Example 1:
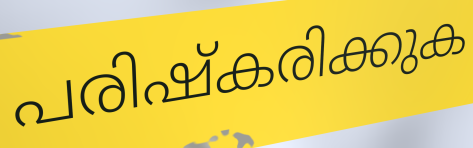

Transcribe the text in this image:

പരിഷ്കരിക്കുക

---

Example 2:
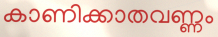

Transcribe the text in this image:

കാണിക്കാതവണ്ണം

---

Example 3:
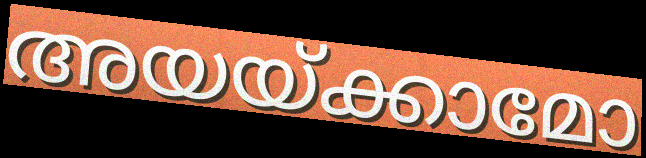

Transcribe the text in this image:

അയയ്ക്കാമോ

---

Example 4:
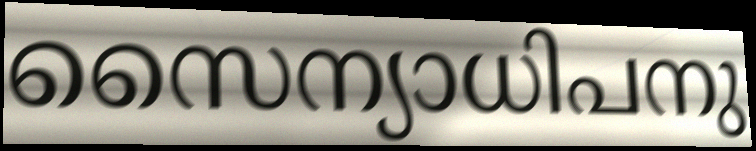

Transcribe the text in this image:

സൈന്യാധിപനു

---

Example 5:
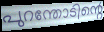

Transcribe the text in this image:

പുറന്തോടിന്റെ